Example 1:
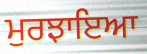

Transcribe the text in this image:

ਮੁਰਝਾਇਆ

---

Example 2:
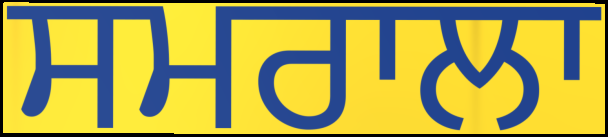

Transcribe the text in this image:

ਸਮਰਾਲਾ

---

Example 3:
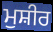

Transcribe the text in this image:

ਮੁਸ਼ੀਰ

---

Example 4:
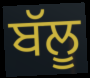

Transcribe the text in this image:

ਬੱਲੂ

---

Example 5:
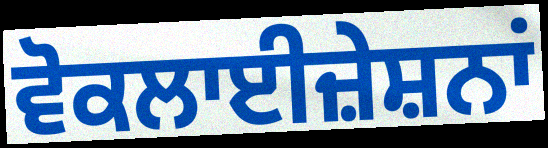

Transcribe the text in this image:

ਵੋਕਲਾਈਜ਼ੇਸ਼ਨਾਂ